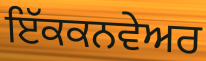
ਇੱਕਕਨਵੇਅਰ